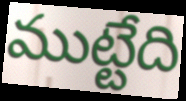
ముట్టేది